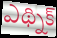
ఎథ్నిక్